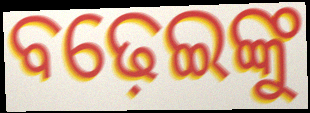
ବଢ଼େଇଙ୍କୁ